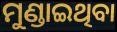
ମୁଣ୍ଡାଇଥିବା